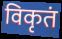
विकृतं